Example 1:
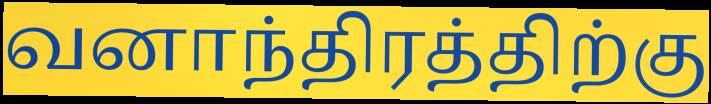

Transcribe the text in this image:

வனாந்திரத்திற்கு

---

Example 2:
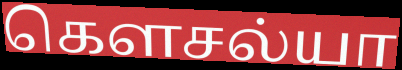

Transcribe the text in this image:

கௌசல்யா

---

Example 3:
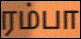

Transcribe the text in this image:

ரம்பா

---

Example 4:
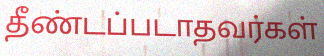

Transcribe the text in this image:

தீண்டப்படாதவர்கள்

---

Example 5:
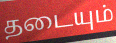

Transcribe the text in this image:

தடையும்